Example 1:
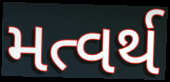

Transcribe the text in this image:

મત્વર્થ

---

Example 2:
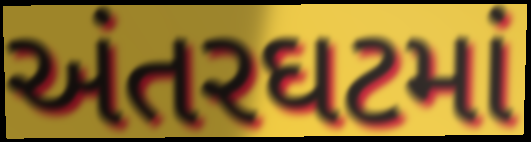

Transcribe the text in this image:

અંતરઘટમાં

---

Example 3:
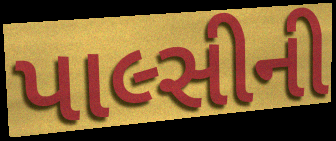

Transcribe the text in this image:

પાલ્સીની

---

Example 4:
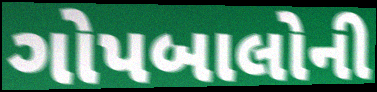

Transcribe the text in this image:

ગોપબાલોની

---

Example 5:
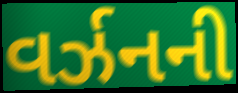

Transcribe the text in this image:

વર્ઝનની